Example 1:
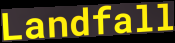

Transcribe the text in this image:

Landfall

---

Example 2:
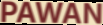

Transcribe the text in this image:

PAWAN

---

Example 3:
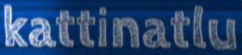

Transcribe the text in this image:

kattinatlu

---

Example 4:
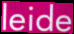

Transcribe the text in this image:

leide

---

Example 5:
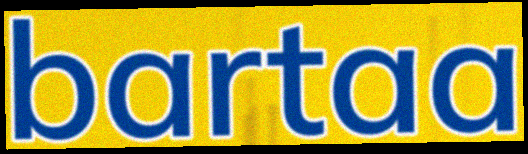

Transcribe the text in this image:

bartaa